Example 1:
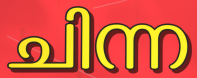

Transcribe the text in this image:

ചിന്ന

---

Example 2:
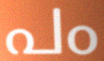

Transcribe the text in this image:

പം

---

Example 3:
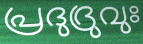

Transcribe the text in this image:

പ്രദുദ്രുവുഃ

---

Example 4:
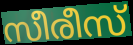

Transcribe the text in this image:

സീരീസ്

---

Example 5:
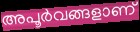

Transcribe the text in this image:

അപൂർവങ്ങളാണ്